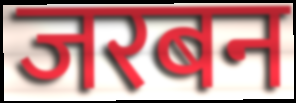
जरबन